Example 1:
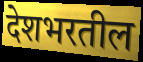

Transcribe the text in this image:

देशभरतील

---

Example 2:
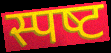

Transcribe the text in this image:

स्‍पष्‍ट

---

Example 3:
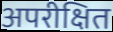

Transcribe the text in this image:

अपरीक्षित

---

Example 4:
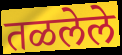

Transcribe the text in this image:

तळलेले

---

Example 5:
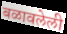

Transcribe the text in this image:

बळावलेली